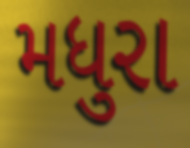
મધુરા